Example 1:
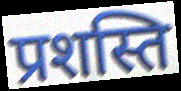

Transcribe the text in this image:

प्रशस्ति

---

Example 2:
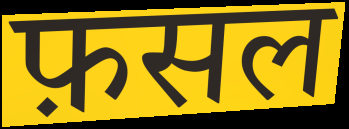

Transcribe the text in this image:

फ़सल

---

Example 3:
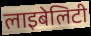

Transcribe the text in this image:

लाइबेलिटी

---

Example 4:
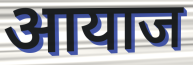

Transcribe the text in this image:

आयाज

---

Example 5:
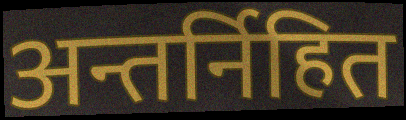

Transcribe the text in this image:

अन्तर्निहित